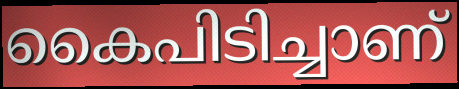
കൈപിടിച്ചാണ്